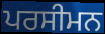
ਪਰਸੀਮਨ